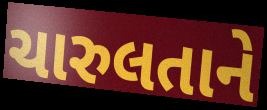
ચારુલતાને